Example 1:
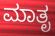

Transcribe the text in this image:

ಮಾತೃ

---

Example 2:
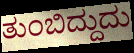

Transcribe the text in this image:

ತುಂಬಿದ್ದುದು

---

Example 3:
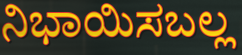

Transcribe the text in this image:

ನಿಭಾಯಿಸಬಲ್ಲ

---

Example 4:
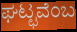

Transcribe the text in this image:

ಘಟ್ಟವೆಂಬ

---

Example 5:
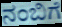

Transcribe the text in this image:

ನಂಬಿಗೆ